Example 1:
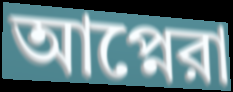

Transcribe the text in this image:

আপ্নেরা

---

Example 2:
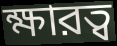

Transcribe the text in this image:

ক্ষারত্ব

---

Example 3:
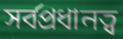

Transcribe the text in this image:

সর্বপ্রধানত্ব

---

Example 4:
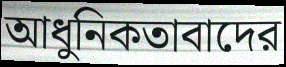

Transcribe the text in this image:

আধুনিকতাবাদের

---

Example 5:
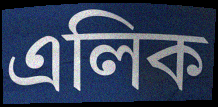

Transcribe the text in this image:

এলিক